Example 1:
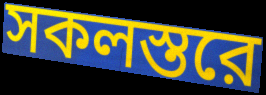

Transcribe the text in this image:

সকলস্তরে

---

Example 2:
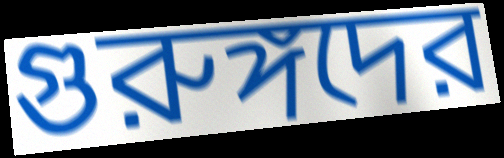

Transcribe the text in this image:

গুরুঙ্গদের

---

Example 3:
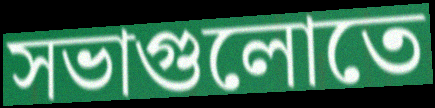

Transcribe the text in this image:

সভাগুলোতে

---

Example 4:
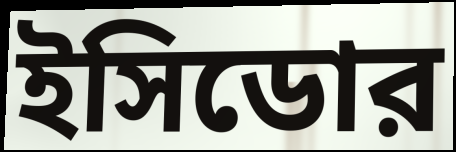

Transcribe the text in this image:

ইসিডোর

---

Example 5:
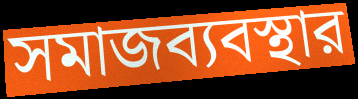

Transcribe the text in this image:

সমাজব্যবস্থার